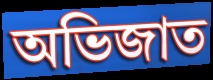
অভিজাত